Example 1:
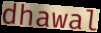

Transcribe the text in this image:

dhawal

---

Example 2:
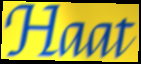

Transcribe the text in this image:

Haat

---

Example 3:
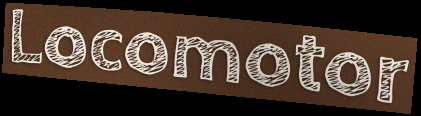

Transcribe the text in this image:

Locomotor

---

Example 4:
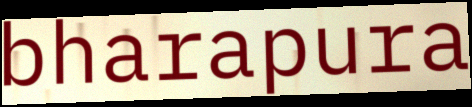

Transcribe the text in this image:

bharapura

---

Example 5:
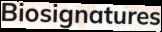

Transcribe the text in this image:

Biosignatures